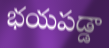
భయపడ్డా